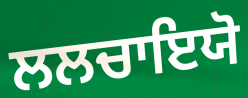
ਲਲਚਾਇਯੋ